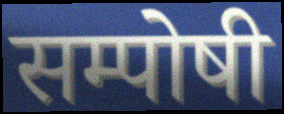
सम्पोषी